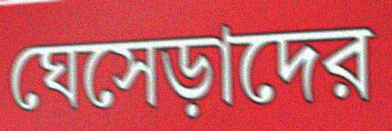
ঘেসেড়াদের